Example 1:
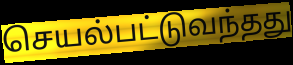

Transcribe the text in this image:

செயல்பட்டுவந்தது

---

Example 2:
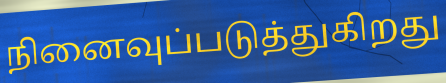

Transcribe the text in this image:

நினைவுப்படுத்துகிறது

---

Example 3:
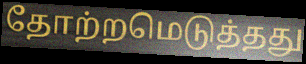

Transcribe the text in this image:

தோற்றமெடுத்தது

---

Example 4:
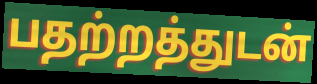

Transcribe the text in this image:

பதற்றத்துடன்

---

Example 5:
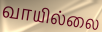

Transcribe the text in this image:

வாயில்லை